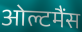
ओल्टमैंस